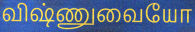
விஷ்ணுவையோ